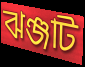
ঝঞ্জাট